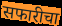
सफारीचा